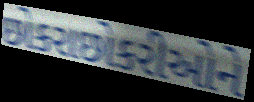
છોકરાછોકરીઓને